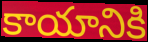
కాయానికి